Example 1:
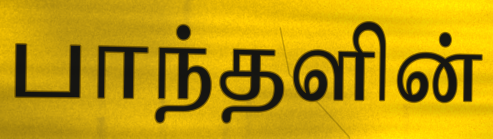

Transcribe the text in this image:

பாந்தளின்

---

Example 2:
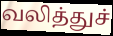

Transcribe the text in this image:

வலித்துச்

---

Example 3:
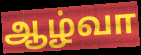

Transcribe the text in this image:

ஆழ்வா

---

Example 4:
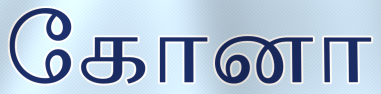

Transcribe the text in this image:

கோனா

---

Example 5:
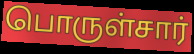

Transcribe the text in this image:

பொருள்சார்